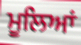
ਮੂਲਿਆਂ